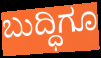
ಬುದ್ಧಿಗೂ